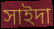
সাইদা